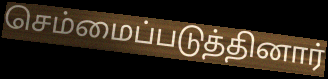
செம்மைப்படுத்தினார்